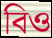
বিও